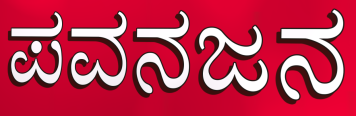
ಪವನಜನ